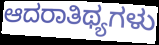
ಆದರಾತಿಥ್ಯಗಳು